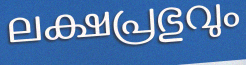
ലക്ഷപ്രഭുവും